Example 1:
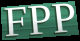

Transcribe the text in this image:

FPP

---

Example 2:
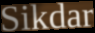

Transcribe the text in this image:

Sikdar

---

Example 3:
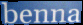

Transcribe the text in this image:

benna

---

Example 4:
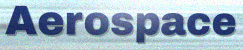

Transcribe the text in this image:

Aerospace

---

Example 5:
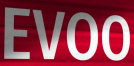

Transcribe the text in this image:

EVOO